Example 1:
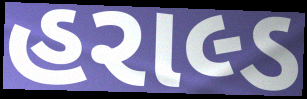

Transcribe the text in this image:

હરાલ્ડ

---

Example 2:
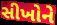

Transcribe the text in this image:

સીખોને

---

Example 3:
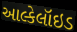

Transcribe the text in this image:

આલ્કેલૉઇડ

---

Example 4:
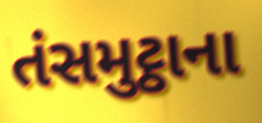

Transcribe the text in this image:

તંસમુટ્ઠાના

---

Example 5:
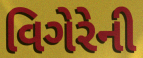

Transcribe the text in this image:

વિગેરેની